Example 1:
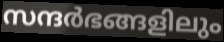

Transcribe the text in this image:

സന്ദർഭങ്ങളിലും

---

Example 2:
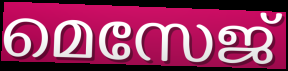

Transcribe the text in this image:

മെസേജ്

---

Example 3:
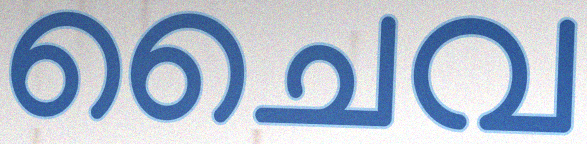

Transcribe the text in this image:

ചൈവ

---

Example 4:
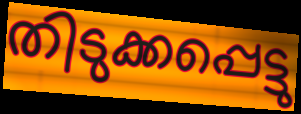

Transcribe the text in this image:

തിടുക്കപ്പെട്ടു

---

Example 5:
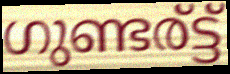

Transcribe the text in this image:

ഗുണ്ടര്ട്ട്